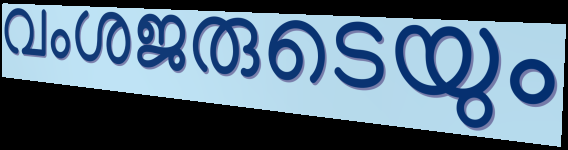
വംശജരുടെയും